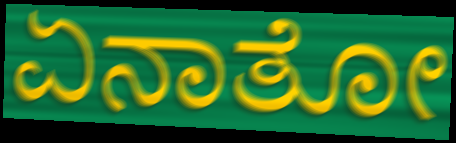
ಏನಾತೋ